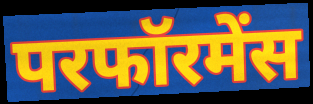
परफॉरमेंस